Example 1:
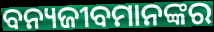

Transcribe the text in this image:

ବନ୍ୟଜୀବମାନଙ୍କର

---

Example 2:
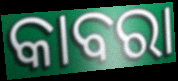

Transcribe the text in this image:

କାବରା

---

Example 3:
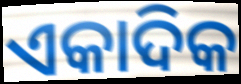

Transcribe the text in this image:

ଏକାଦିକ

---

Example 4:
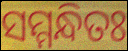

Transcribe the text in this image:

ସମ୍ମନ୍ଧିତଃ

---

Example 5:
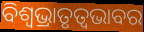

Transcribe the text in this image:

ବିଶ୍ଵଭ୍ରାତୃତ୍ୱଭାବର